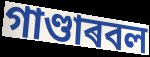
গাণ্ডাৰবল